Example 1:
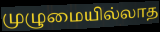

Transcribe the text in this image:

முழுமையில்லாத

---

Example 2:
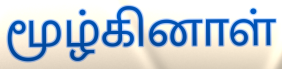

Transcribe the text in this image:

மூழ்கினாள்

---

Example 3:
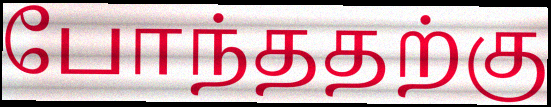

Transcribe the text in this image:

போந்ததற்கு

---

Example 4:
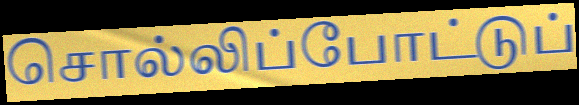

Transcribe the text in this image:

சொல்லிப்போட்டுப்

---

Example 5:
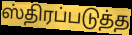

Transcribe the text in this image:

ஸ்திரப்படுத்த